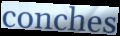
conches